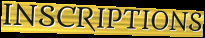
INSCRIPTIONS